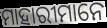
ମାହାରୀମାନେ